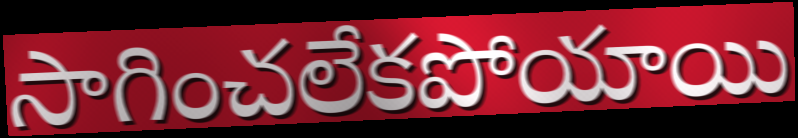
సాగించలేకపోయాయి